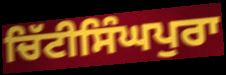
ਚਿੱਟੀਸਿੰਘਪੁਰਾ